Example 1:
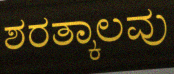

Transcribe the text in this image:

ಶರತ್ಕಾಲವು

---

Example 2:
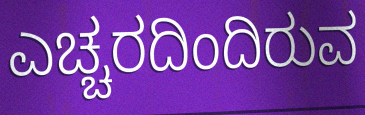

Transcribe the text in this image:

ಎಚ್ಚರದಿಂದಿರುವ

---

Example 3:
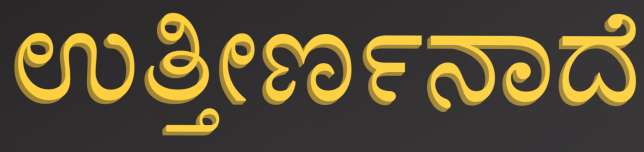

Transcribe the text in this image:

ಉತ್ತೀರ್ಣನಾದೆ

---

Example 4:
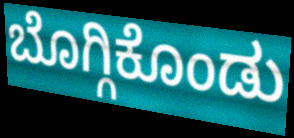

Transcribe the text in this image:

ಬೊಗ್ಗಿಕೊಂಡು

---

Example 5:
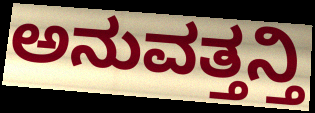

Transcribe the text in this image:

ಅನುವತ್ತನ್ತಿ